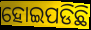
ହୋଇପଡିଛି